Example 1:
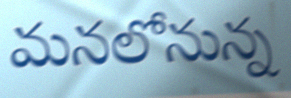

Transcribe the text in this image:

మనలోనున్న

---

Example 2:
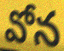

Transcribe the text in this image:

వోన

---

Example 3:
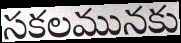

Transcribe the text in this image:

సకలమునకు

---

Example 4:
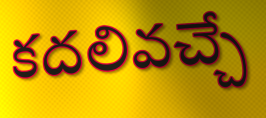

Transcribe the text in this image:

కదలివచ్చే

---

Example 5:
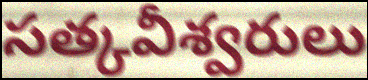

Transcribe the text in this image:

సత్కవీశ్వరులు